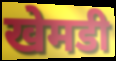
खेमडी